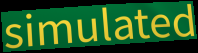
simulated